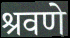
श्रवणे